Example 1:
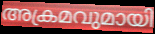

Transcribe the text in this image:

അക്രമവുമായി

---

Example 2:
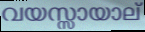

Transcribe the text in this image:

വയസ്സായാല്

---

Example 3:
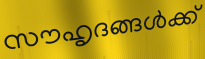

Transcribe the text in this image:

സൗഹൃദങ്ങൾക്ക്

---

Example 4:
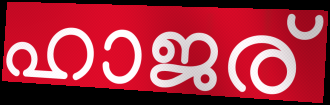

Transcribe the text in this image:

ഹാജര്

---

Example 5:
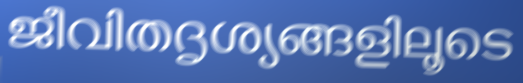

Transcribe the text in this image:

ജീവിതദൃശ്യങ്ങളിലൂടെ